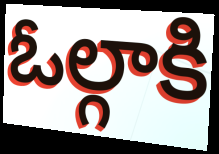
ఓల్గాకి